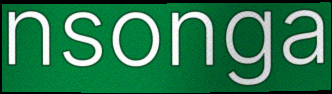
nsonga